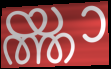
യ്ത്താ